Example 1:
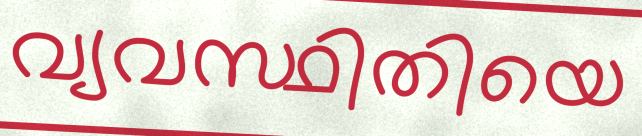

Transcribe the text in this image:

വ്യവസ്ഥിതിയെ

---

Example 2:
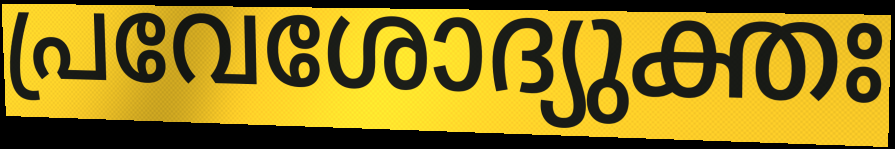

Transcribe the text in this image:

പ്രവേശോദ്യുക്തഃ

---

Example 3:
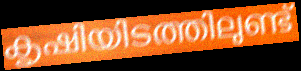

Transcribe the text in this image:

കൃഷിയിടത്തിലുണ്ട്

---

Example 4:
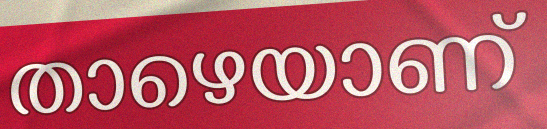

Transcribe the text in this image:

താഴെയാണ്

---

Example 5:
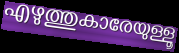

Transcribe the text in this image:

എഴുത്തുകാരേയുള്ളൂ